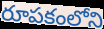
రూపకంలోని